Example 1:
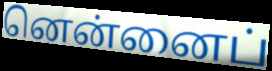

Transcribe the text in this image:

னென்னைப்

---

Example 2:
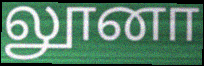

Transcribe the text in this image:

லூனா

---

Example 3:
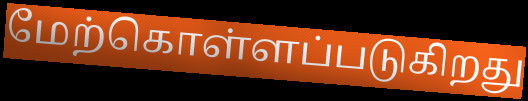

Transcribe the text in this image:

மேற்கொள்ளப்படுகிறது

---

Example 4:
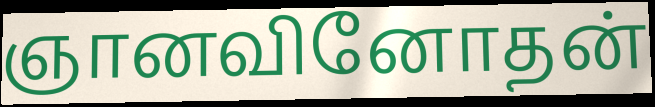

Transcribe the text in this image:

ஞானவினோதன்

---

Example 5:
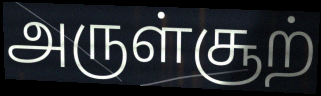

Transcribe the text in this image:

அருள்சூற்